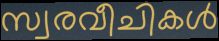
സ്വരവീചികൾ